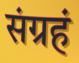
संग्रहं